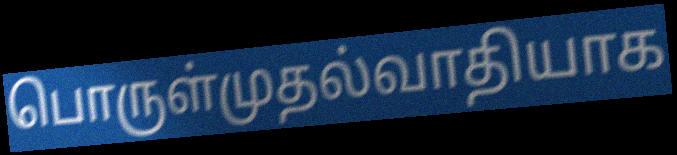
பொருள்முதல்வாதியாக